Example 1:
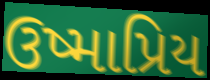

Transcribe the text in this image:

ઉષ્માપ્રિય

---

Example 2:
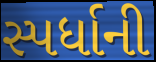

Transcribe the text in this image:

સ્પર્ધાની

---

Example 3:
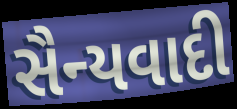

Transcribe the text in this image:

સૈન્યવાદી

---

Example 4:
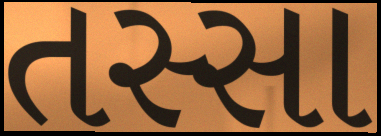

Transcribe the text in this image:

તસ્સા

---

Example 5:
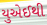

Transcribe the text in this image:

યુએઈથી